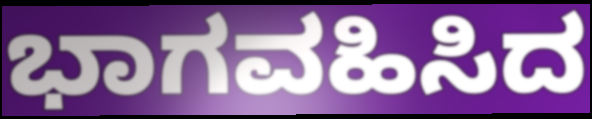
ಭಾಗವಹಿಸಿದ